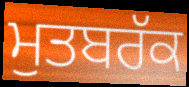
ਮੁਤਬਰੱਕ